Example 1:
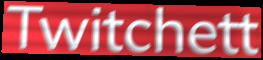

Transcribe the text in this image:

Twitchett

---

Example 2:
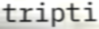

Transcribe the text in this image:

tripti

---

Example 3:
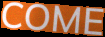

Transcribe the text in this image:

COME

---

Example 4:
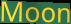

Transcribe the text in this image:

Moon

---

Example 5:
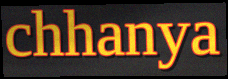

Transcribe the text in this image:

chhanya